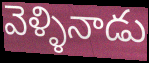
వెళ్ళినాడు